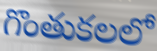
గొంతుకలలో